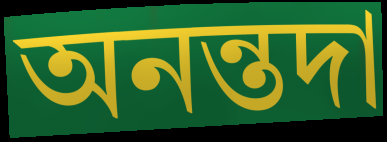
অনন্তদা